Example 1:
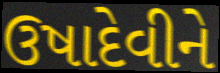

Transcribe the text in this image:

ઉષાદેવીને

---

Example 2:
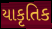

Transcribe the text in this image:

યાકૃતિક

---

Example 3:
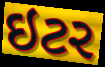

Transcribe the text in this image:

ઇટર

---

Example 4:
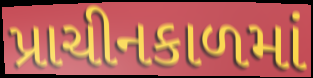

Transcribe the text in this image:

પ્રાચીનકાળમાં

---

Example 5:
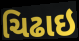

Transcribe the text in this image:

ચિઢાઇ